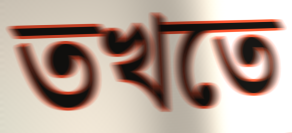
তখতে